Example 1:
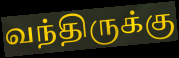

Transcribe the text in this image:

வந்திருக்கு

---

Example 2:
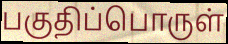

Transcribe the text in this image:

பகுதிப்பொருள்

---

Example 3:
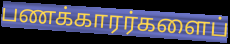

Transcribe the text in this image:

பணக்காரர்களைப்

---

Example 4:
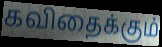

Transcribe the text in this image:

கவிதைக்கும்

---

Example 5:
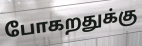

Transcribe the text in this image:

போகறதுக்கு